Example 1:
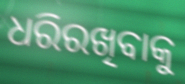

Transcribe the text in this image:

ଧରିରଖିବାକୁ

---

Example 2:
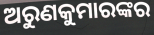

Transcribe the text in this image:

ଅରୁଣକୁମାରଙ୍କର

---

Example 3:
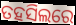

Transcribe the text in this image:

ତହସିଲରେ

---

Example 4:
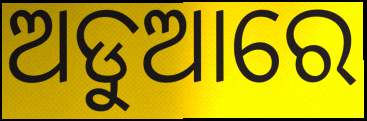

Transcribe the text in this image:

ଅଡୁଆରେ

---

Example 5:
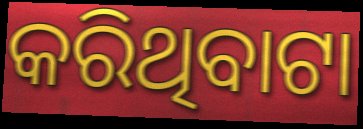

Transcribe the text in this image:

କରିଥିବାଟା